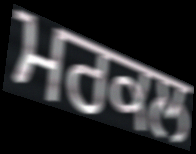
ਮਰਕਲ